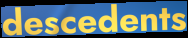
descedents